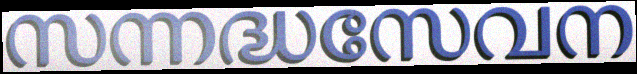
സന്നദ്ധസേവന